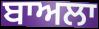
ਬਾਅਲਾ